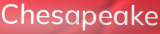
Chesapeake